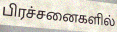
பிரச்சனைகளில்